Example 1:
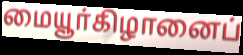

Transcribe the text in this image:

மையூர்கிழானைப்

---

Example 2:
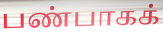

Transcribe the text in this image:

பண்பாகக்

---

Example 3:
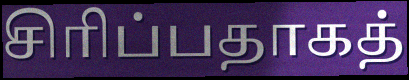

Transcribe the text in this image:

சிரிப்பதாகத்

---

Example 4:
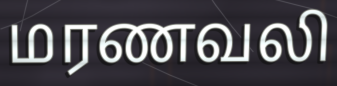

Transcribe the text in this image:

மரணவலி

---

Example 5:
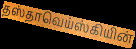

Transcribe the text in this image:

தஸ்தாவெய்ஸ்கியின்